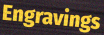
Engravings